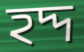
হদ্দ